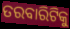
ତରବାରିଟିକୁ